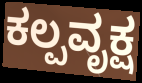
ಕಲ್ಪವೃಕ್ಷ